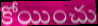
కోయించు